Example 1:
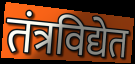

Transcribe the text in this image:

तंत्रविद्येत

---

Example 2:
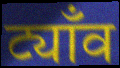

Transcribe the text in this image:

ट्याँव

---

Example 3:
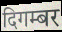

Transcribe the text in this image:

दिगम्बर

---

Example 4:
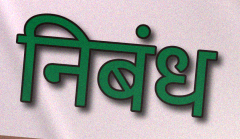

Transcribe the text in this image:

निबंध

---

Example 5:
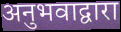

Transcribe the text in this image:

अनुभवाद्वारा